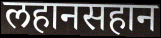
लहानसहान